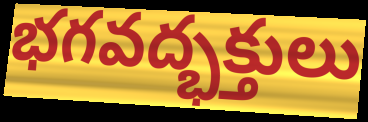
భగవద్భక్తులు